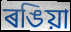
ৰঙিয়া